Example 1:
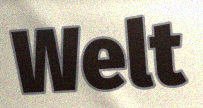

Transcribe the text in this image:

Welt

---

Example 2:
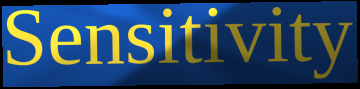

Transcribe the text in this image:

Sensitivity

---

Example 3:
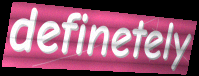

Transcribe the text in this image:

definetely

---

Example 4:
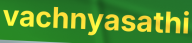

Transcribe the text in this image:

vachnyasathi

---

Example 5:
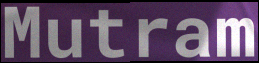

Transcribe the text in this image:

Mutram